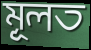
মূলত